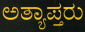
ಅತ್ಯಾಪ್ತರು